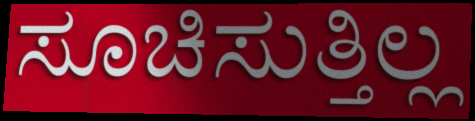
ಸೂಚಿಸುತ್ತಿಲ್ಲ